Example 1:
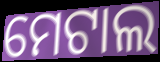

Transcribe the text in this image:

ମେଟାଲ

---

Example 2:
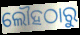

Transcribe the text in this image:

ଲୌହଠାରୁ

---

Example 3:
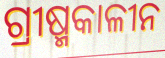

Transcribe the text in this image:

ଗ୍ରୀଷ୍ମକାଳୀନ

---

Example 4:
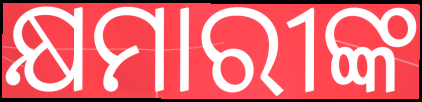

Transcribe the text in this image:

କ୍ଷମାରୀଙ୍କ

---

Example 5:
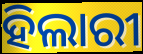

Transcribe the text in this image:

ହିଲାରୀ